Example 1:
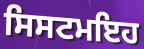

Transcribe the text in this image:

ਸਿਸਟਮਇਹ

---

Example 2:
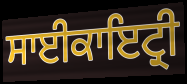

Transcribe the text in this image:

ਸਾਈਕਾਇਟ੍ਰੀ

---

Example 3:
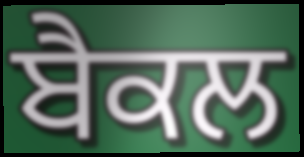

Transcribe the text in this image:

ਬੈਕਲ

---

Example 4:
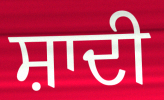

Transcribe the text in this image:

ਸ਼ਾਦੀ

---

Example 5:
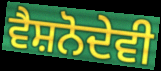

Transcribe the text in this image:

ਵੈਸ਼ਨੋਦੇਵੀ